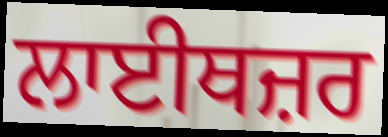
ਲਾਈਥਜ਼ਰ